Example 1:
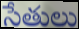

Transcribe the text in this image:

సేతులు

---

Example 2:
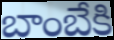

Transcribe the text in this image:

బాంబేకి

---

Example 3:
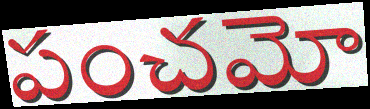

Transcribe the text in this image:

పంచమో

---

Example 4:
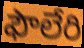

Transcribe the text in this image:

ఫౌలేరి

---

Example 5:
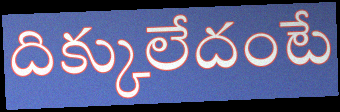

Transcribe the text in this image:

దిక్కులేదంటే